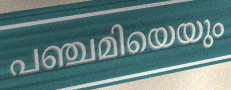
പഞ്ചമിയെയും